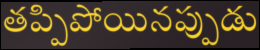
తప్పిపోయినప్పుడు